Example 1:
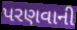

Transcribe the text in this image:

પરણવાની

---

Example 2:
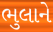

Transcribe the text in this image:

ભુલાને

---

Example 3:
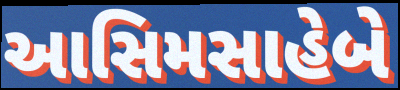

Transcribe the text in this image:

આસિમસાહેબે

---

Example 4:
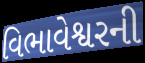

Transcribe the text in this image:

વિભાવેશ્વરની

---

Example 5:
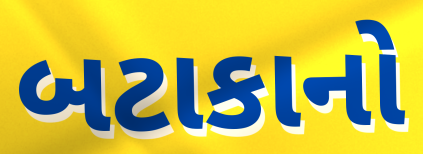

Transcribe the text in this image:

બટાકાનો